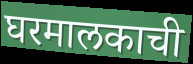
घरमालकाची